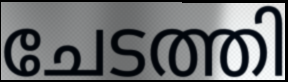
ചേടത്തി